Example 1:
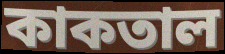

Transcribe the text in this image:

কাকতাল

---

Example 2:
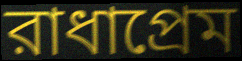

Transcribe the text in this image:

রাধাপ্রেম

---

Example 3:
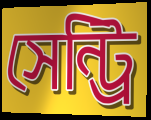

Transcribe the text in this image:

সেন্ট্রি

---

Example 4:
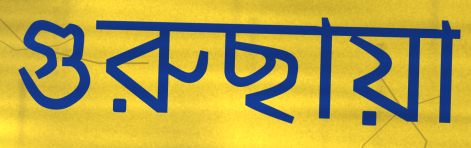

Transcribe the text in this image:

গুরুছায়া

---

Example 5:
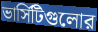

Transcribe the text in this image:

ভার্সিটিগুলোর